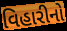
વિહારીનો